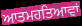
ਆਤਮਹਤਿਆਵਾਂ